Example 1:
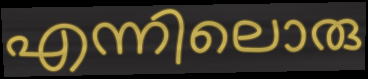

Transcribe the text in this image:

എന്നിലൊരു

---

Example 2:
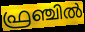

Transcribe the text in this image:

ഫ്രഞ്ചിൽ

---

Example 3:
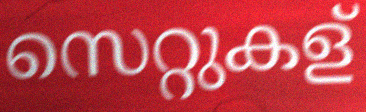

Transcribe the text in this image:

സെറ്റുകള്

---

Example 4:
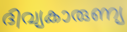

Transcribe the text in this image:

ദിവ്യകാരുണ്യ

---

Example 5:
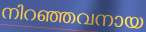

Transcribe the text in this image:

നിറഞ്ഞവനായ